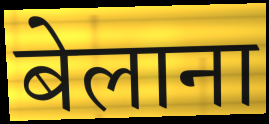
बेलाना